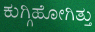
ಕುಗ್ಗಿಹೋಗಿತ್ತು